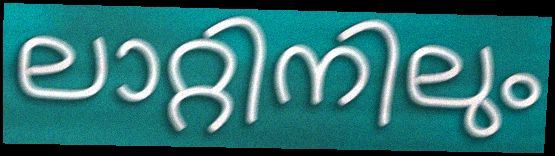
ലാറ്റിനിലും